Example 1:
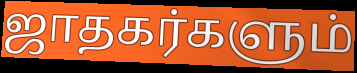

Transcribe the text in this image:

ஜாதகர்களும்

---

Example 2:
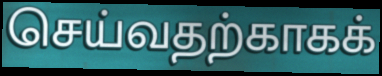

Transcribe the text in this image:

செய்வதற்காகக்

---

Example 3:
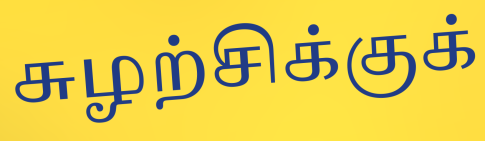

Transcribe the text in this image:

சுழற்சிக்குக்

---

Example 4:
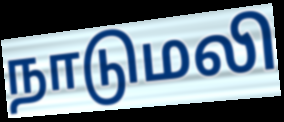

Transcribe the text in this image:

நாடுமலி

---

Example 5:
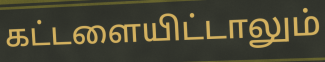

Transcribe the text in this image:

கட்டளையிட்டாலும்